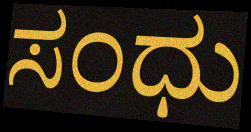
ಸಂಧು